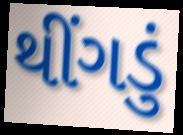
થીંગડું